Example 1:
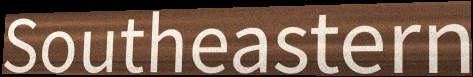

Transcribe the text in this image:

Southeastern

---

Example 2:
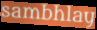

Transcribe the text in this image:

sambhlay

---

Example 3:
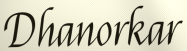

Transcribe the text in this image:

Dhanorkar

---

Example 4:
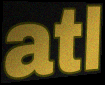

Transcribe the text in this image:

atl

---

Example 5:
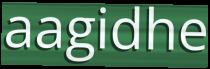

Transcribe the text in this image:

aagidhe